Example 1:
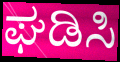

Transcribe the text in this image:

ಘಡಿಸಿ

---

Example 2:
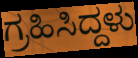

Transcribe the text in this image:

ಗ್ರಹಿಸಿದ್ದಳು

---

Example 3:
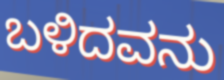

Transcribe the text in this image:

ಬಳಿದವನು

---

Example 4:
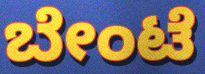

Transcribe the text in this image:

ಬೇಂಟೆ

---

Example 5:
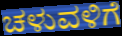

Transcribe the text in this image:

ಚಳುವಳಿಗೆ